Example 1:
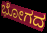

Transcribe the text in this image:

ಭೋಗದ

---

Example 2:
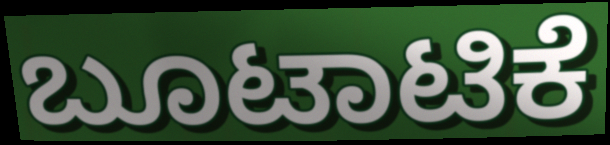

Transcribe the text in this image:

ಬೂಟಾಟಿಕೆ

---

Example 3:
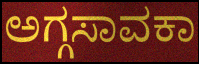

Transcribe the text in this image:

ಅಗ್ಗಸಾವಕಾ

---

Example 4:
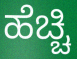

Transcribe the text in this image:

ಹೆಚ್ಚಿ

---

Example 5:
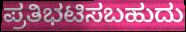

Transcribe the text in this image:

ಪ್ರತಿಭಟಿಸಬಹುದು